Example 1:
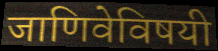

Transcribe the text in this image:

जाणिवेविषयी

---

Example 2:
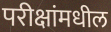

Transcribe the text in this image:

परीक्षांमधील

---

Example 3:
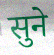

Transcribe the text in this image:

सुने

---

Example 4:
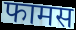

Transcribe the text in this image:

फामस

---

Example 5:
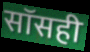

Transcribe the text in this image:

सॉसही